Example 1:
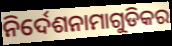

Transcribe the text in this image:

ନିର୍ଦେଶନାମାଗୁଡିକର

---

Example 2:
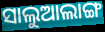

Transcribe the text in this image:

ସାଲୁଆଲାଙ୍ଗ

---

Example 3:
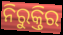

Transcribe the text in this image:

ନିରୁକ୍ତିର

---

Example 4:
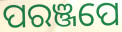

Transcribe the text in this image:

ପରଞ୍ଜପେ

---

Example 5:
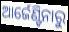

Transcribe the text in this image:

ଆର୍ଜେଣ୍ଟିନାରୁ